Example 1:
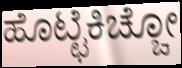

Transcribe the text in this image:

ಹೊಟ್ಟೆಕಿಚ್ಚೋ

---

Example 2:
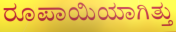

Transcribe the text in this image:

ರೂಪಾಯಿಯಾಗಿತ್ತು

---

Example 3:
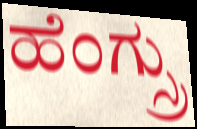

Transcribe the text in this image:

ಹೆಂಗ್ಸ್ರು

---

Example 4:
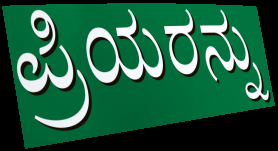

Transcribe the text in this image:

ಪ್ರಿಯರನ್ನು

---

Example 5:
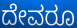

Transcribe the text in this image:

ದೇವರೂ